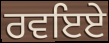
ਰਵਇਏ